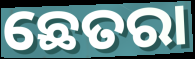
ଛେତରା